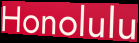
Honolulu